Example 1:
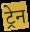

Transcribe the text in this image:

ट्रेन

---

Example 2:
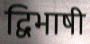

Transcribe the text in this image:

द्विभाषी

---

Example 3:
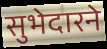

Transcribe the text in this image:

सुभेदारने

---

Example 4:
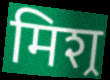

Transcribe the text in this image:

मिश्र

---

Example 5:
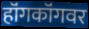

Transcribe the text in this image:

हॉंगकॉंगवर